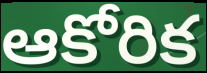
ఆకోరిక